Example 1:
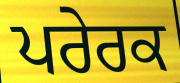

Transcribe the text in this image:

ਪਰੇਰਕ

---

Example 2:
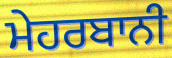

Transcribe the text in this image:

ਮੇਹਰਬਾਨੀ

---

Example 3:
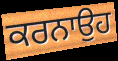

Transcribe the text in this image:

ਕਰਨਾਉਹ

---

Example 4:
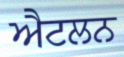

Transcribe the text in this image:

ਐਟਲਨ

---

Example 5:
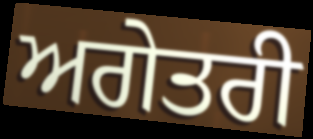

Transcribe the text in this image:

ਅਗੇਤਰੀ